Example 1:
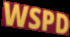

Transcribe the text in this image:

WSPD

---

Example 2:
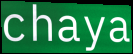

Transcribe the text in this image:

chaya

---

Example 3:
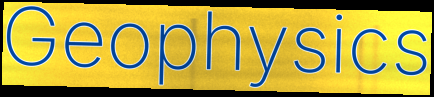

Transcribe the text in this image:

Geophysics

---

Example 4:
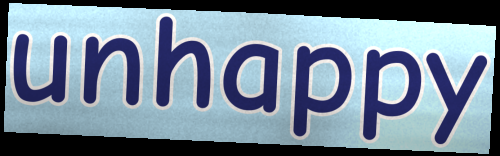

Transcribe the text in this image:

unhappy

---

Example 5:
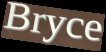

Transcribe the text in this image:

Bryce